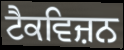
ਟੈਕਵਿਜ਼ਨ